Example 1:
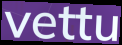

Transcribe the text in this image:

vettu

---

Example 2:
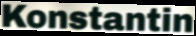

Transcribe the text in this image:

Konstantin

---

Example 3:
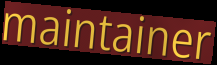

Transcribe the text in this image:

maintainer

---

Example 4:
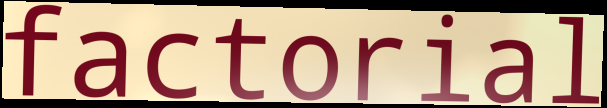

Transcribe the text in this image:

factorial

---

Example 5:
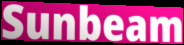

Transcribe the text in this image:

Sunbeam